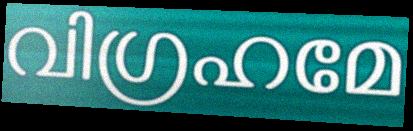
വിഗ്രഹമേ